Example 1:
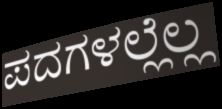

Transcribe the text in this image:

ಪದಗಳಲ್ಲೆಲ್ಲ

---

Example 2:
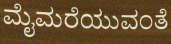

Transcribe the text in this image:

ಮೈಮರೆಯುವಂತೆ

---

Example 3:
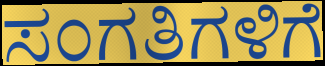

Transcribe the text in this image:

ಸಂಗತಿಗಳಿಗೆ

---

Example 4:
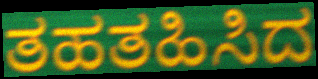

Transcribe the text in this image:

ತಹತಹಿಸಿದ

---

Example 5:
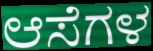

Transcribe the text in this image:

ಆಸೆಗಳ